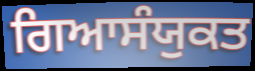
ਗਿਆਸੰਯੁਕਤ